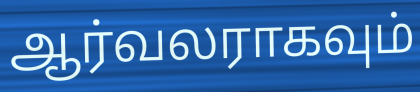
ஆர்வலராகவும்